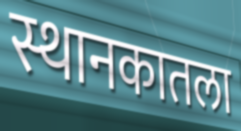
स्थानकातला